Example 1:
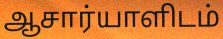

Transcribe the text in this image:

ஆசார்யாளிடம்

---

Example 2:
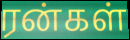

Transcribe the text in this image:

ரன்கள்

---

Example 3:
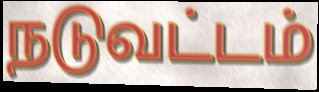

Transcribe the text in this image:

நடுவட்டம்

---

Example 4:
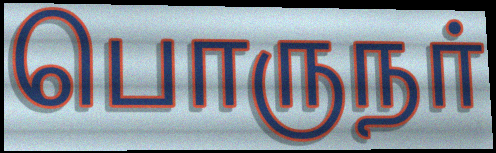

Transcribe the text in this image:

பொருநர்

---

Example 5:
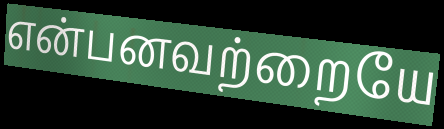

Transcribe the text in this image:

என்பனவற்றையே